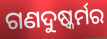
ଗଣଦୁଷ୍କର୍ମର